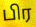
பிர